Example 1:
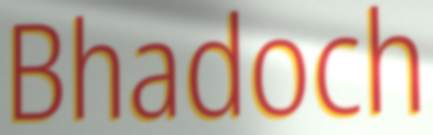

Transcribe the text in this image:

Bhadoch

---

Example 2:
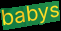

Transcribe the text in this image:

babys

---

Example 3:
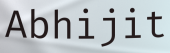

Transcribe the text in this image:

Abhijit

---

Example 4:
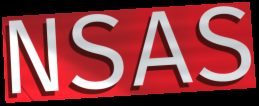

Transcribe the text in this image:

NSAS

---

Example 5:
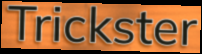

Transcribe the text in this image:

Trickster